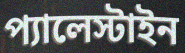
প্যালেস্টাইন